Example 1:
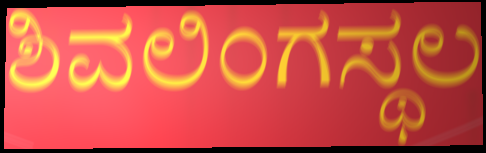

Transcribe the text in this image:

ಶಿವಲಿಂಗಸ್ಥಲ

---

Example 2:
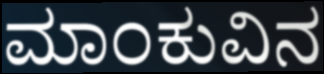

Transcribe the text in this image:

ಮಾಂಕುವಿನ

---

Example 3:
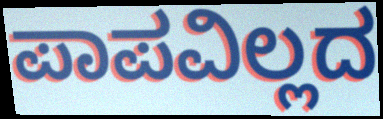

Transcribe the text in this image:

ಪಾಪವಿಲ್ಲದ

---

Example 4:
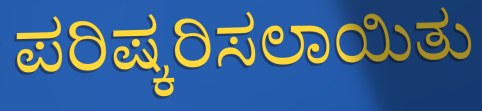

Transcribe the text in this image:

ಪರಿಷ್ಕರಿಸಲಾಯಿತು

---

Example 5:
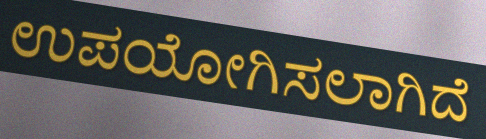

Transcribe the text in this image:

ಉಪಯೋಗಿಸಲಾಗಿದೆ